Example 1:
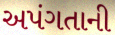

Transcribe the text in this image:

અપંગતાની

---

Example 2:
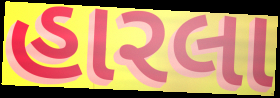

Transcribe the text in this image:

હારલા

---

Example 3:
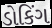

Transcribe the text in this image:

ડોકિંગ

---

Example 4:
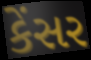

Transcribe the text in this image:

કેંસર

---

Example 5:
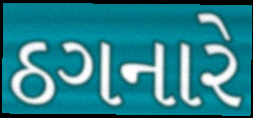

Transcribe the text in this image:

ઠગનારે